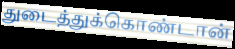
துடைத்துக்கொண்டான்